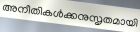
അനീതികൾക്കനുസൃതമായി